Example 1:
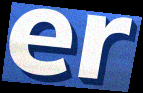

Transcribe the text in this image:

er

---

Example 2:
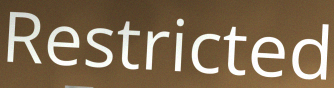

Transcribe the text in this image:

Restricted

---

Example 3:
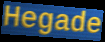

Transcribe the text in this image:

Hegade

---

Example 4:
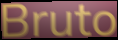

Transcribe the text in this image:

Bruto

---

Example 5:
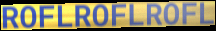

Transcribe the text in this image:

ROFLROFLROFL